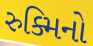
રુક્મિનો